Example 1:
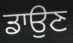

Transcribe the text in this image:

ਡਾਉਣ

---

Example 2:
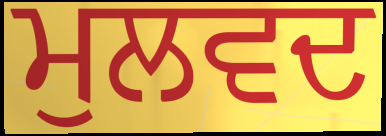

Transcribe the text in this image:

ਮੁਲਵਦ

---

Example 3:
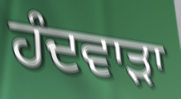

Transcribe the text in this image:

ਹੰਦਵਾੜਾ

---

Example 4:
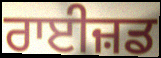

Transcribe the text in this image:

ਰਾਈਜ਼ਡ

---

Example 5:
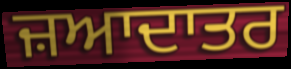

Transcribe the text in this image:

ਜ਼ਆਦਾਤਰ